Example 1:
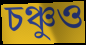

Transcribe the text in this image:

চঞ্চুও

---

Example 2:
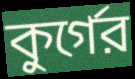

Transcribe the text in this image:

কুর্গের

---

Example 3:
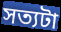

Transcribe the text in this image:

সত্যটা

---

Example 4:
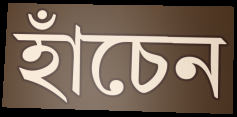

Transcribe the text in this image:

হাঁচেন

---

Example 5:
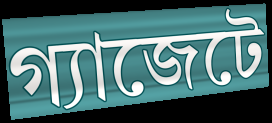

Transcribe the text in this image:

গ্যাজেটে